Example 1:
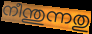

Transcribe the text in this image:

നീന്തുന്നതു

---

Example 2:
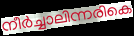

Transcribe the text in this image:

നീർച്ചാലിന്നരികെ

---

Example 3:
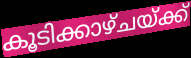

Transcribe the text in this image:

കൂടിക്കാഴ്ചയ്ക്ക്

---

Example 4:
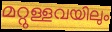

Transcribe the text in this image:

മറ്റുള്ളവയിലും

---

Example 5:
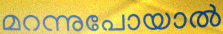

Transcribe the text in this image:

മറന്നുപോയാൽ